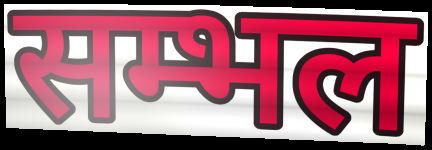
सम्भल